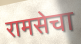
रामसेचा